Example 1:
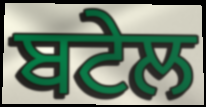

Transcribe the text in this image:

ਬਟੇਲ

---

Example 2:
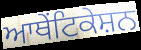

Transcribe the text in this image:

ਆਥੇਂਟਿਕੇਸ਼ਨ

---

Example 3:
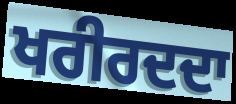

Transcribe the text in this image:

ਖਰੀਰਦਦਾ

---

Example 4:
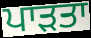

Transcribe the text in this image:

ਪਾੜਤਾ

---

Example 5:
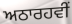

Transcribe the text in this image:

ਅਠਾਰਹਵੀਂ